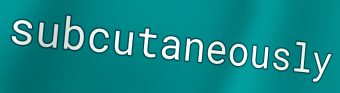
subcutaneously